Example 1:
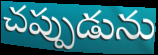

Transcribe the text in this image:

చప్పుడును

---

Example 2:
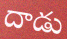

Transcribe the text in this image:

దాడు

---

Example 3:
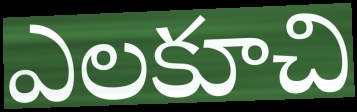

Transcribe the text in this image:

ఎలకూచి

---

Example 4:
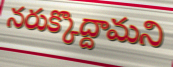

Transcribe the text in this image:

నరుక్కొద్దామని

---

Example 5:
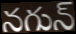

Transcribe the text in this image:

నగున్